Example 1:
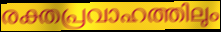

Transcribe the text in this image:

രക്തപ്രവാഹത്തിലും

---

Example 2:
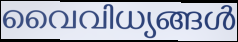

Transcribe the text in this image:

വൈവിധ്യങ്ങൾ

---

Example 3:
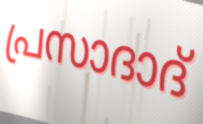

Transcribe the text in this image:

പ്രസാദാദ്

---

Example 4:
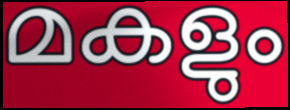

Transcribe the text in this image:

മകളും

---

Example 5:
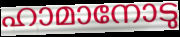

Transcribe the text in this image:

ഹാമാനോടു